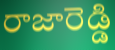
రాజారెడ్డి